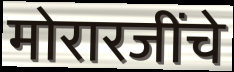
मोरारजींचे